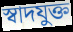
স্বাদযুক্ত